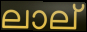
ലാല്